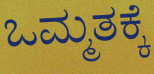
ಒಮ್ಮತಕ್ಕೆ